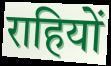
राहियों